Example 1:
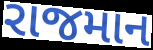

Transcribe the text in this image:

રાજમાન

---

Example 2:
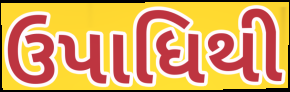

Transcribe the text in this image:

ઉપાધિથી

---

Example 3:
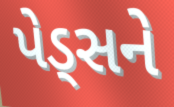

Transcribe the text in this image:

પેડ્સને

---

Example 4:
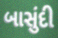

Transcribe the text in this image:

બાસુંદી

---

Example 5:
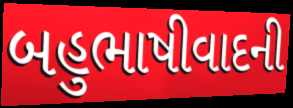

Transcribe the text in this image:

બહુભાષીવાદની